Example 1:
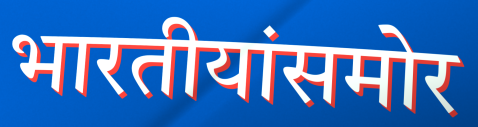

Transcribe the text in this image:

भारतीयांसमोर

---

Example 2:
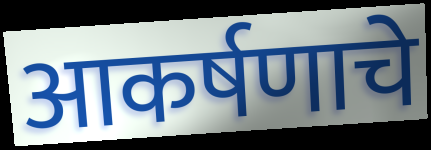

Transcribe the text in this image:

आकर्षणाचे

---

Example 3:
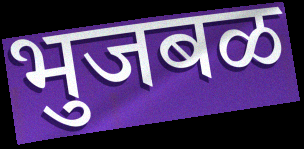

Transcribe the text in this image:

भुजबळ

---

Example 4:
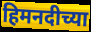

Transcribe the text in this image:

हिमनदीच्या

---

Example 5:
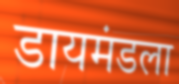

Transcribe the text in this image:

डायमंडला